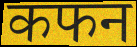
कफन